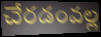
చేరడంవల్ల